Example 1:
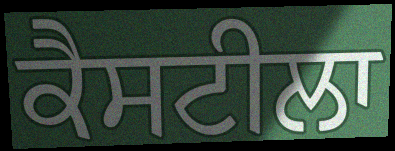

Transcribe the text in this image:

ਕੈਸਟੀਲਾ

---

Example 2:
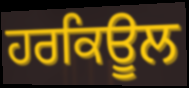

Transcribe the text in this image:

ਹਰਕਿਊਲ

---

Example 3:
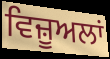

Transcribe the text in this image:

ਵਿਜ਼ੂਅਲਾਂ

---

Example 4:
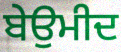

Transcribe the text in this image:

ਬੇਉਮੀਦ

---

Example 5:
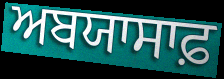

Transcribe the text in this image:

ਅਬਯਾਸਾਫ਼